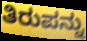
ತಿರುಪನ್ನು